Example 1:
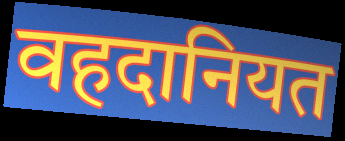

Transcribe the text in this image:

वहदानियत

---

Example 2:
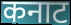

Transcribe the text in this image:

कनाट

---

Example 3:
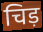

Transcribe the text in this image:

चिड़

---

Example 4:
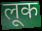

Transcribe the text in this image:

लूक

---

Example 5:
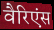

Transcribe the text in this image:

वैरिएंस